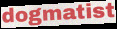
dogmatist